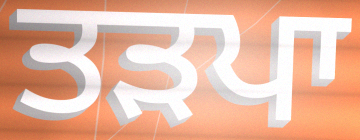
ਤੜਪਾ